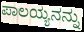
ಪಾಲಯ್ಯನನ್ನು